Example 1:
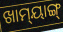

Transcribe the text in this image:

ଖାମ୍‌ୟାଙ୍ଗ୍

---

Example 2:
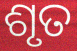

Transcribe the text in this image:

ଶୃତ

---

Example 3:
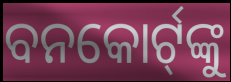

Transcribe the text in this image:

ବନକୋର୍ଟ୍‍ଙ୍କୁ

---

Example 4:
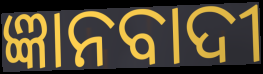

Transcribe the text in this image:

ଜ୍ଞାନବାଦୀ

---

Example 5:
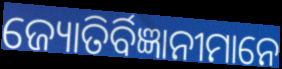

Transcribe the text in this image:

ଜ୍ୟୋତିର୍ବିଜ୍ଞାନୀମାନେ